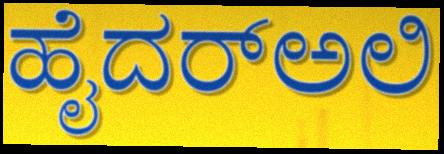
ಹೈದರ್‌ಅಲಿ